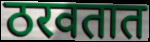
ठरवतात